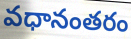
వధానంతరం